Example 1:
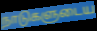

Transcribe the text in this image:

நாடுகளுடைய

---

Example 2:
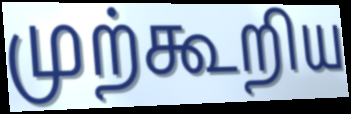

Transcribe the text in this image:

முற்கூறிய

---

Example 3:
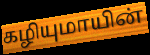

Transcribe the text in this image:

கழியுமாயின்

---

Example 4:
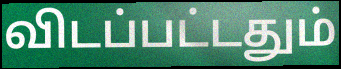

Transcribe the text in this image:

விடப்பட்டதும்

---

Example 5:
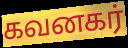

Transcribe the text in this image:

கவனகர்